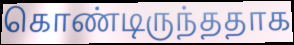
கொண்டிருந்ததாக